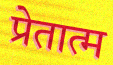
प्रेतात्म